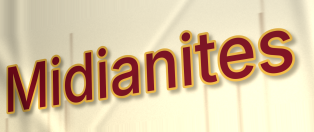
Midianites